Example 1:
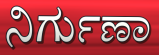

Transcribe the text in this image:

ನಿರ್ಗುಣಾ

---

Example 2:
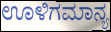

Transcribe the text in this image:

ಊಳಿಗಮಾನ್ಯ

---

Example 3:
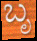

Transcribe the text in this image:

ಬೃ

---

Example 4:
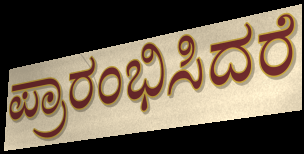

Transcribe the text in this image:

ಪ್ರಾರಂಭಿಸಿದರೆ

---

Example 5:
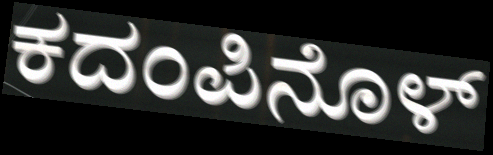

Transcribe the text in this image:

ಕದಂಪಿನೊಳ್